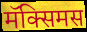
मॅक्सिमस